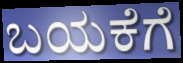
ಬಯಕೆಗೆ